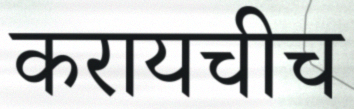
करायचीच